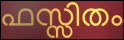
ഫസ്സിതം